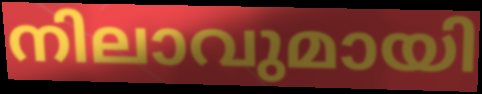
നിലാവുമായി